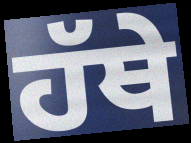
ਹੱਥੇ